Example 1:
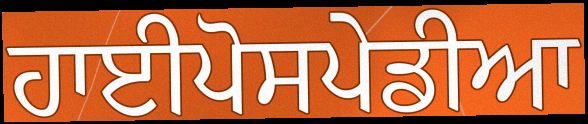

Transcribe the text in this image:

ਹਾਈਪੋਸਪੇਡੀਆ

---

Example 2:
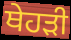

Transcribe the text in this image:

ਥੇਹੜੀ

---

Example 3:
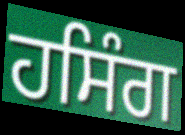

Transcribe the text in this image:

ਹਸਿੰਗ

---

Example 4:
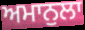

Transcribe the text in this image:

ਅਮਾਨੁਲਾ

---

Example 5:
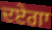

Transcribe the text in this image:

ਦਏਗਾ